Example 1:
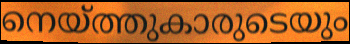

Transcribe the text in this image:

നെയ്ത്തുകാരുടെയും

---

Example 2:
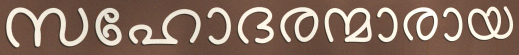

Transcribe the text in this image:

സഹോദരന്മാരായ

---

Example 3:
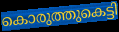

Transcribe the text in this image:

കൊരുത്തുകെട്ടി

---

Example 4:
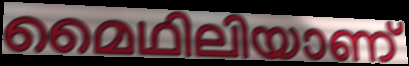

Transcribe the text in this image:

മൈഥിലിയാണ്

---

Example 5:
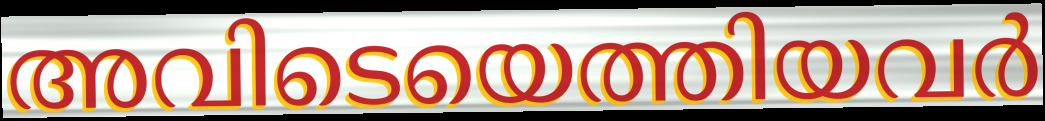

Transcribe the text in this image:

അവിടെയെത്തിയവർ